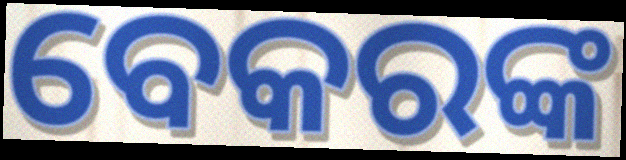
ବେକରଙ୍କ